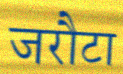
जरौटा